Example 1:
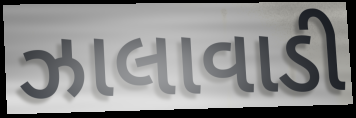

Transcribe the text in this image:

ઝાલાવાડી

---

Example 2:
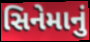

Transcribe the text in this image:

સિનેમાનું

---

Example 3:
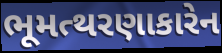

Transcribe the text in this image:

ભૂમત્થરણાકારેન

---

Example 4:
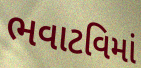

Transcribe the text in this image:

ભવાટવિમાં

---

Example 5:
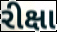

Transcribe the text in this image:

રીક્ષા